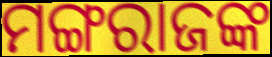
ମଙ୍ଗରାଜଙ୍କ